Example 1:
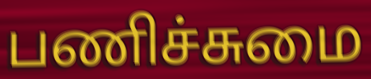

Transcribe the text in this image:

பணிச்சுமை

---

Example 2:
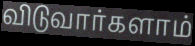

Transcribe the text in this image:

விடுவார்களாம்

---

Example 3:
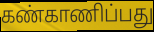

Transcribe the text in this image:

கண்காணிப்பது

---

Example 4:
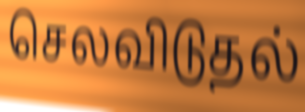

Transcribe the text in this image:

செலவிடுதல்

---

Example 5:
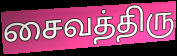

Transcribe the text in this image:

சைவத்திரு